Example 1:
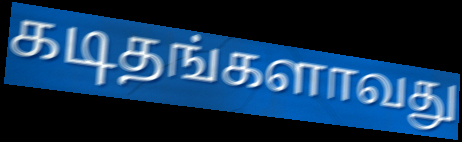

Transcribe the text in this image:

கடிதங்களாவது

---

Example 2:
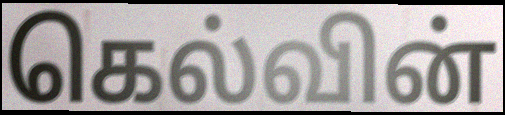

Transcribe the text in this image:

கெல்வின்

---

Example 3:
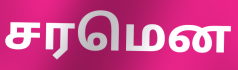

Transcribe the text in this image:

சரமென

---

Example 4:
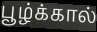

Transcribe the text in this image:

பூழ்க்கால்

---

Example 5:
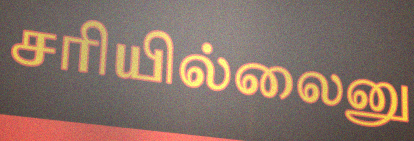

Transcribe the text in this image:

சரியில்லைனு